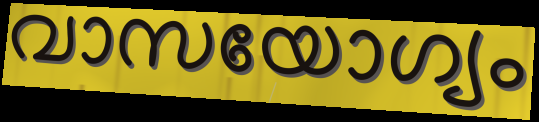
വാസയോഗ്യം